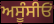
ਅਸੂੰਸੀਓਂ